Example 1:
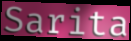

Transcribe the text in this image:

Sarita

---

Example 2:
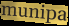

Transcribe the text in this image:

munipa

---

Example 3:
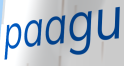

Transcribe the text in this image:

paagu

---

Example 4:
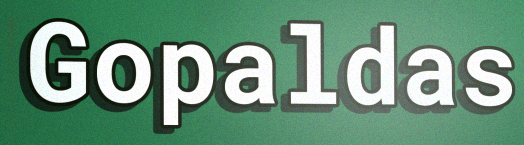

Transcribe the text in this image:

Gopaldas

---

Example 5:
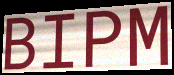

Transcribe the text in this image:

BIPM